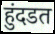
हुंदडत